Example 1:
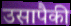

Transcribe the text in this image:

उसापैकी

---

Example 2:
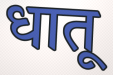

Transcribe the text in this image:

धातू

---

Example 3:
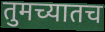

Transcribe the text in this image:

तुमच्यातच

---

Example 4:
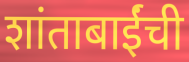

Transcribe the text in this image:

शांताबाईंची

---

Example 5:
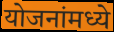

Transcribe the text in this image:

योजनांमध्ये